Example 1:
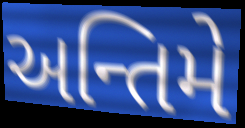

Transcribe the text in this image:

અન્તિમે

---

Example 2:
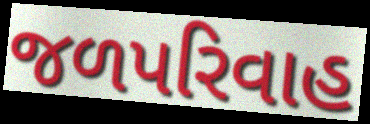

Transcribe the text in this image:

જળપરિવાહ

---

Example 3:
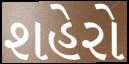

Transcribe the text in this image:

શહેરો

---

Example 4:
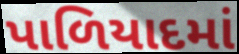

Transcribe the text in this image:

પાળિયાદમાં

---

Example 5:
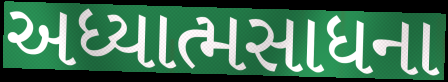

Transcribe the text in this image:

અધ્યાત્મસાધના